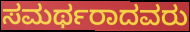
ಸಮರ್ಥರಾದವರು